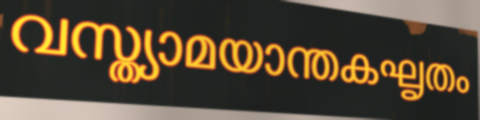
വസ്ത്യാമയാന്തകഘൃതം